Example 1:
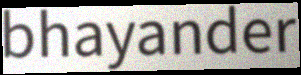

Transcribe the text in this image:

bhayander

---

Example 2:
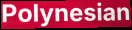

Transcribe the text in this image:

Polynesian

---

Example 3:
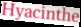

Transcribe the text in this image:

Hyacinthe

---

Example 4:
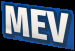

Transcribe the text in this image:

MEV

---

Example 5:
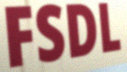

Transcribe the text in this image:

FSDL